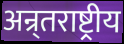
अन्र्तराष्ट्रीय